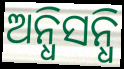
ଅନ୍ଧିସନ୍ଧି